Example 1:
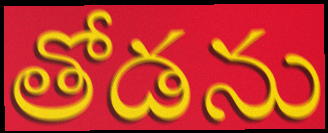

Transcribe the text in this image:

తోడను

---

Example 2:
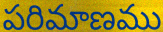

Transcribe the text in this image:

పరిమాణము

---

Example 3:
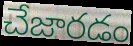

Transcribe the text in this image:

చేజారడం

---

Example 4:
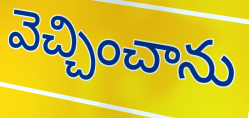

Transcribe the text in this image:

వెచ్చించాను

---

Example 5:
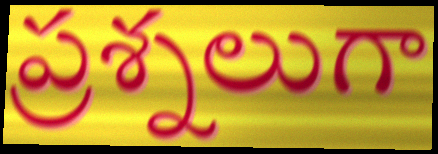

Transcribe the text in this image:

ప్రశ్నలుగా